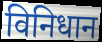
विनिधान